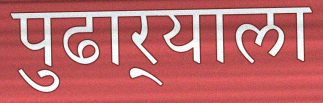
पुढार्याला